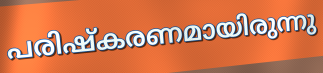
പരിഷ്കരണമായിരുന്നു